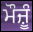
ਮੌਜ਼ੂੰ